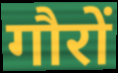
गौरों